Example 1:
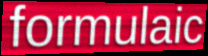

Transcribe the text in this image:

formulaic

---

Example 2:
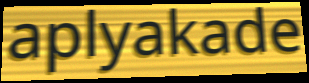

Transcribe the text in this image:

aplyakade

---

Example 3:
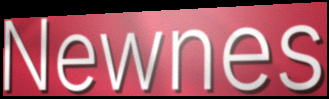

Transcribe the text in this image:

Newnes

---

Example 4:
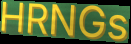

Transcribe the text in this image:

HRNGs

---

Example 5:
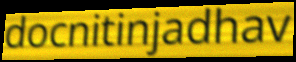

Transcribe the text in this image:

docnitinjadhav